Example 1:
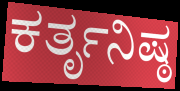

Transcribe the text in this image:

ಕರ್ತೃನಿಷ್ಠ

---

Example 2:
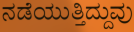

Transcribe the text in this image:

ನಡೆಯುತ್ತಿದ್ದುವು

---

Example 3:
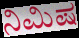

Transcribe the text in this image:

ನಿಮಿಷ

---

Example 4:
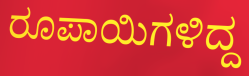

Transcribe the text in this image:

ರೂಪಾಯಿಗಳಿದ್ದ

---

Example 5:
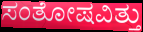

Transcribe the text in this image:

ಸಂತೋಷವಿತ್ತು